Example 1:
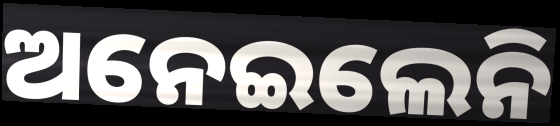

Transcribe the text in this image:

ଅନେଇଲେନି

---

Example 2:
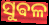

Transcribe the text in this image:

ସୁଵଳ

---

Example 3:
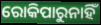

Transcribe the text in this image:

ରୋକିପାରୁନାହିଁ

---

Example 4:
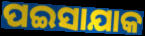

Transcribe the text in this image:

ପଇସାଯାକ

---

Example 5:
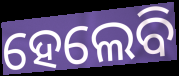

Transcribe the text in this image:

ହେଲେବି